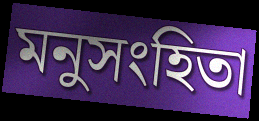
মনুসংহিতা